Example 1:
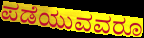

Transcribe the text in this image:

ಪಡೆಯುವವರೂ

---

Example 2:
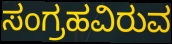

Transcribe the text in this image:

ಸಂಗ್ರಹವಿರುವ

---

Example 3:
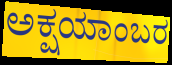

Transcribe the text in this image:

ಅಕ್ಷಯಾಂಬರ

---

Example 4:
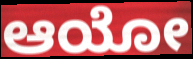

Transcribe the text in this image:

ಆಯೋ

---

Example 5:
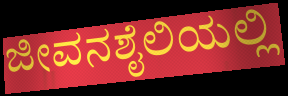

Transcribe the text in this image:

ಜೀವನಶೈಲಿಯಲ್ಲಿ